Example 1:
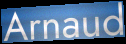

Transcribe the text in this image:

Arnaud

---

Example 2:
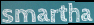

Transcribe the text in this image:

smartha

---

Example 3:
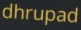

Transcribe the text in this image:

dhrupad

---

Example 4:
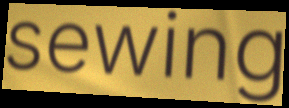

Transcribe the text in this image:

sewing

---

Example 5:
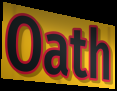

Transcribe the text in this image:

Oath